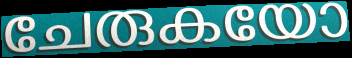
ചേരുകയോ